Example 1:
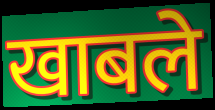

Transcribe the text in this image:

खाबले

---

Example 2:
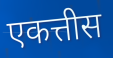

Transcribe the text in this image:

एकत्तीस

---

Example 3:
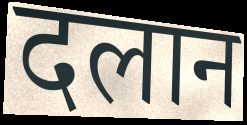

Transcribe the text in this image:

दलान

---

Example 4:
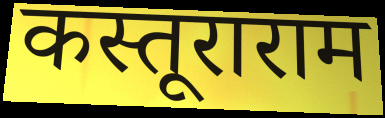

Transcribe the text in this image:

कस्तूराराम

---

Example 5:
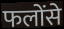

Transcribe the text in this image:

फलोंसे